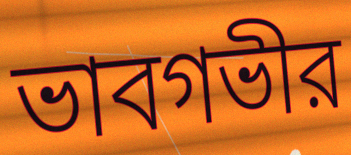
ভাবগভীর